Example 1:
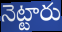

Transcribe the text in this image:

నెట్టారు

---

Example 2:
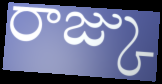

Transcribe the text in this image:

రాజ్కు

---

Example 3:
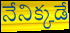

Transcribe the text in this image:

నేనిక్కడే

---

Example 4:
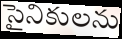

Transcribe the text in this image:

సైనికులను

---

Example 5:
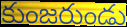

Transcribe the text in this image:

కుంజరుండు